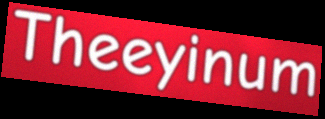
Theeyinum